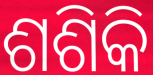
ଶଶିକି